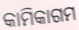
କାମିକାଗମ